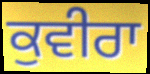
ਕੁਵੀਰਾ